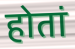
होतां